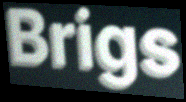
Brigs